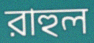
রাহুল